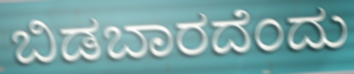
ಬಿಡಬಾರದೆಂದು